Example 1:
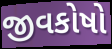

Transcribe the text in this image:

જીવકોષો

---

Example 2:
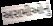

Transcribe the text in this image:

અરામીઓનું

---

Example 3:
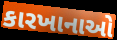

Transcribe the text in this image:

કારખાનાઓ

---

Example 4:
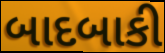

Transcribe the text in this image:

બાદબાકી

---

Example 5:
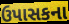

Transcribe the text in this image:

ઉપાસકના